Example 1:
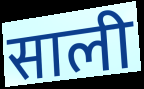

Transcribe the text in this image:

साली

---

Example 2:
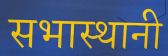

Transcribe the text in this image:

सभास्थानी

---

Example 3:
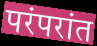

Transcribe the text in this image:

परंपरांत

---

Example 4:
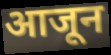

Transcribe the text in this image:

आजून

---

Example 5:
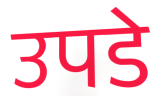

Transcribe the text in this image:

उपडे